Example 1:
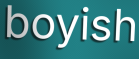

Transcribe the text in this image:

boyish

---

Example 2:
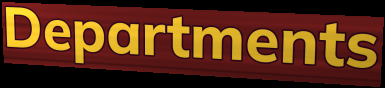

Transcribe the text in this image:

Departments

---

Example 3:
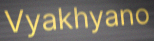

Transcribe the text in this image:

Vyakhyano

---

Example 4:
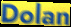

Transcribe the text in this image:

Dolan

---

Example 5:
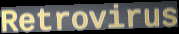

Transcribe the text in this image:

Retrovirus